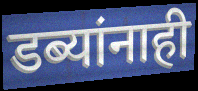
डब्यांनाही